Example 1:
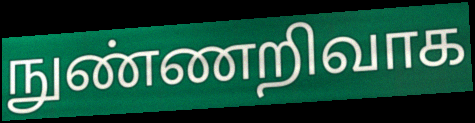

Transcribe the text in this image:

நுண்ணறிவாக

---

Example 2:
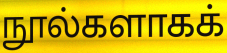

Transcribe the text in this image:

நூல்களாகக்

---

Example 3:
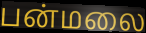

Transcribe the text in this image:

பன்மலை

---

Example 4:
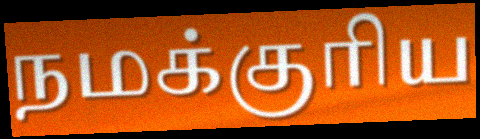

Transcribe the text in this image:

நமக்குரிய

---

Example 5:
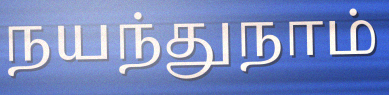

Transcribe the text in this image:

நயந்துநாம்